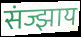
संज्झाय